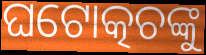
ଘଟୋତ୍କଚଙ୍କୁ